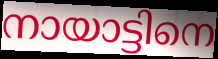
നായാട്ടിനെ